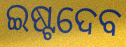
ଇଷ୍ଟଦେବ